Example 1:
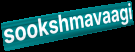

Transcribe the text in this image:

sookshmavaagi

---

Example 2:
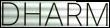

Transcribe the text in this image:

DHARM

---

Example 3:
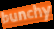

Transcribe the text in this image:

bunchy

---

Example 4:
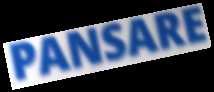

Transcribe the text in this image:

PANSARE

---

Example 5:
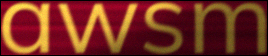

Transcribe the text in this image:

awsm